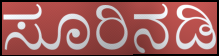
ಸೂರಿನಡಿ